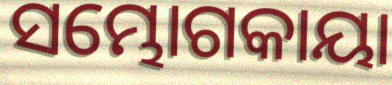
ସମ୍ଭୋଗକାୟା